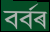
বৰ্বৰ